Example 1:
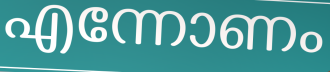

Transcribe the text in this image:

എന്നോണം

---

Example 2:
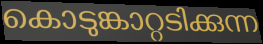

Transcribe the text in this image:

കൊടുങ്കാറ്റടിക്കുന്ന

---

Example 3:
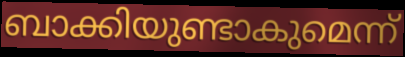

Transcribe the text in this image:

ബാക്കിയുണ്ടാകുമെന്ന്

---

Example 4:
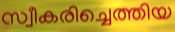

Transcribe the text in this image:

സ്വീകരിച്ചെത്തിയ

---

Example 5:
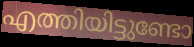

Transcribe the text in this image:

എത്തിയിട്ടുണ്ടോ